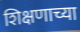
शिक्षणाच्या